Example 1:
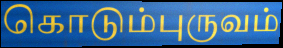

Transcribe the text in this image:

கொடும்புருவம்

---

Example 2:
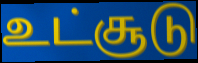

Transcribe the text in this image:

உட்சூடு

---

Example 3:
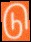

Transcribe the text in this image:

டு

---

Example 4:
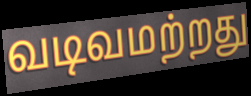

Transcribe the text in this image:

வடிவமற்றது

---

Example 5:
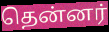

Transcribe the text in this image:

தென்னர்